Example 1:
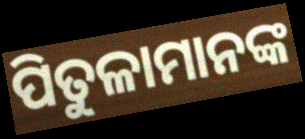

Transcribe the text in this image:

ପିତୁଳାମାନଙ୍କ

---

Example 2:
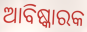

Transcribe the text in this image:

ଆବିଷ୍କାରକ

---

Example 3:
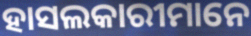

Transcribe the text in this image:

ହାସଲକାରୀମାନେ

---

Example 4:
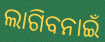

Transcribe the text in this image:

ଲାଗିବନାଇଁ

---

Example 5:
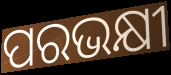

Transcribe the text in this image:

ପରଭକ୍ଷୀ